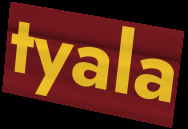
tyala